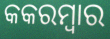
କକରମ୍ବାର